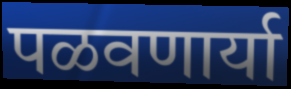
पळवणार्या